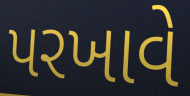
પરખાવે